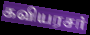
கவியரசர்